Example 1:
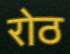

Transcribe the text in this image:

रोठ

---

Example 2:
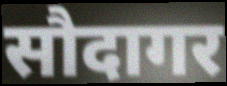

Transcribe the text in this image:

सौदागर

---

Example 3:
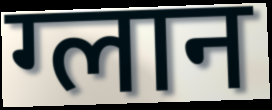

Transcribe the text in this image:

ग्लान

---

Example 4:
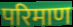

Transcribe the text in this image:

परिमाण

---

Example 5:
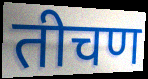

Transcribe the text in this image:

तीचण